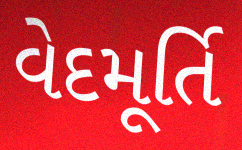
વેદમૂર્તિ